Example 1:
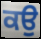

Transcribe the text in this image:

ਕਉ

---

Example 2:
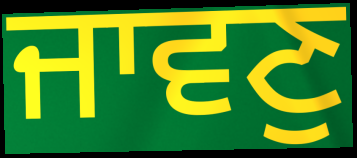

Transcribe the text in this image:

ਜਾਵਣੁ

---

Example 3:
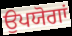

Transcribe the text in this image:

ਉਪਯੋਗਾਂ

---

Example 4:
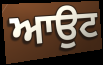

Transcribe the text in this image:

ਆਉਟ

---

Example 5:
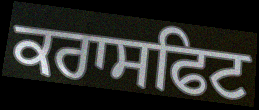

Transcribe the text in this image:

ਕਰਾਸਫਿਟ